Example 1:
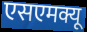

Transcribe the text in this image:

एसएमक्यू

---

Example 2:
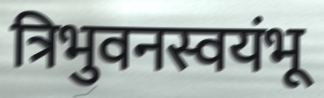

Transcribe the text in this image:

त्रिभुवनस्वयंभू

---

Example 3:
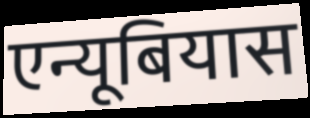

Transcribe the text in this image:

एन्यूबियास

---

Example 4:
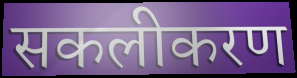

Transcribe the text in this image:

सकलीकरण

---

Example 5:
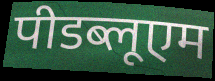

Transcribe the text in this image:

पीडब्लूएम